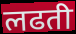
लढती